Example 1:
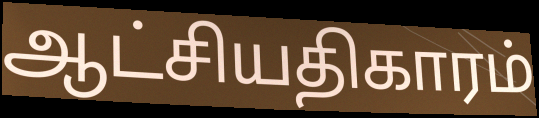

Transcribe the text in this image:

ஆட்சியதிகாரம்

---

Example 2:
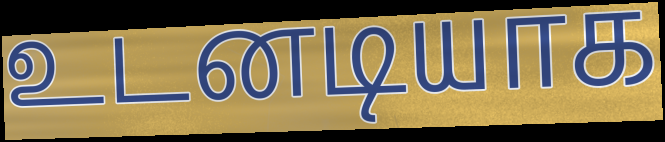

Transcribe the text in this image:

உடனடியாக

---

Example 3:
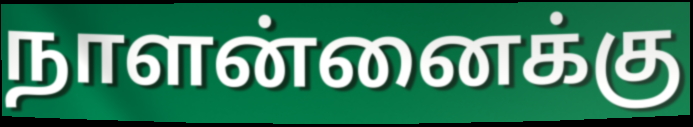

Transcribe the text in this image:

நாளன்னைக்கு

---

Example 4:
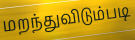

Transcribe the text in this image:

மறந்துவிடும்படி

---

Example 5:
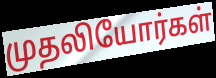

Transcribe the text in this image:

முதலியோர்கள்